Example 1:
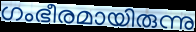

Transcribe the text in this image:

ഗംഭീരമായിരുന്നു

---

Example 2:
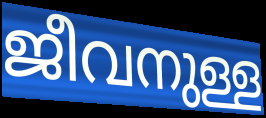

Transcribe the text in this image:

ജീവനുള്ള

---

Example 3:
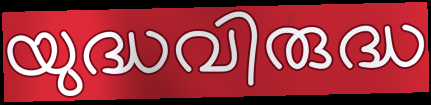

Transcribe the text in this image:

യുദ്ധവിരുദ്ധ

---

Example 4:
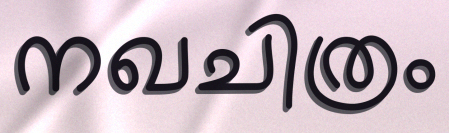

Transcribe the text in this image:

നഖചിത്രം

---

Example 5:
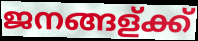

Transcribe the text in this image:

ജനങ്ങള്ക്ക്